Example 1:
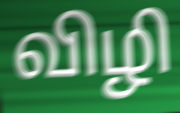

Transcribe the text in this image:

விழி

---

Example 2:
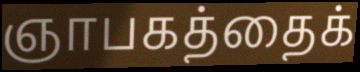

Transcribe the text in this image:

ஞாபகத்தைக்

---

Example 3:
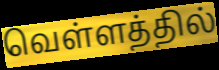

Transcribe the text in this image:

வெள்ளத்தில்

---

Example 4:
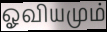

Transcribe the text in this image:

ஓவியமும்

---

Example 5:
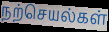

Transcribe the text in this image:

நற்செயல்கள்